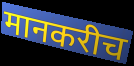
मानकरीच